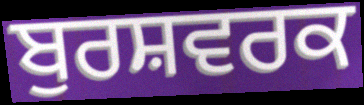
ਬੁਰਸ਼ਵਰਕ